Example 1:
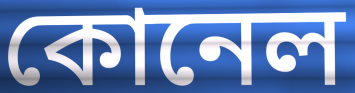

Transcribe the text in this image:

কোনেল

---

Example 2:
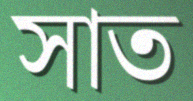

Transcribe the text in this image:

সাত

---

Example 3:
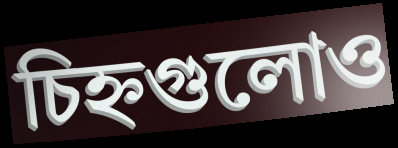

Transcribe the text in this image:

চিহ্নগুলোও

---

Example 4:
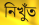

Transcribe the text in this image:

নিখুঁত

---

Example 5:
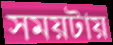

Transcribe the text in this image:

সময়টায়